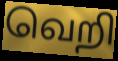
வெறி